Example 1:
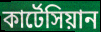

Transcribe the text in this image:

কার্টেসিয়ান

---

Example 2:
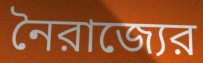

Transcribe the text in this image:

নৈরাজ্যের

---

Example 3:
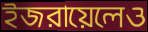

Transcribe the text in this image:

ইজরায়েলেও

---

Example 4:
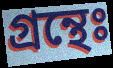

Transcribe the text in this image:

গ্রন্থেঃ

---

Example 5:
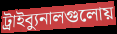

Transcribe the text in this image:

ট্রাইব্যুনালগুলোয়